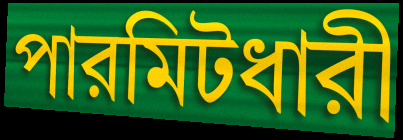
পারমিটধারী